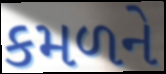
કમળને